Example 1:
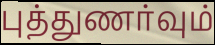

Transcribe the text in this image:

புத்துணர்வும்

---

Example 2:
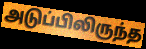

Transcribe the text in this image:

அடுப்பிலிருந்த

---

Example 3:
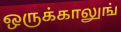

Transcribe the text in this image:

ஒருக்காலுங்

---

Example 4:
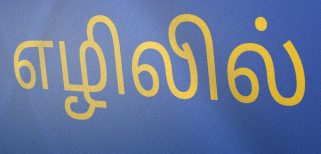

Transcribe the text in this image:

எழிலில்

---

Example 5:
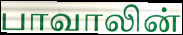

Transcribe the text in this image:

பாவாலின்